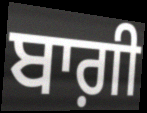
ਬਾਗ਼ੀ